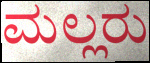
ಮಲ್ಲರು